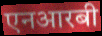
एनआरबी